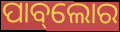
ପାବ୍‌ଲୋର